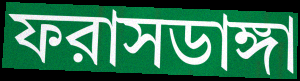
ফরাসডাঙ্গা